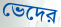
ভেদের